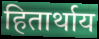
हितार्थाय